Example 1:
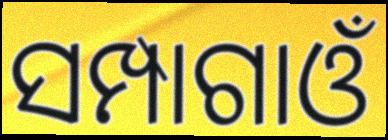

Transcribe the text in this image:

ସମ୍ପାଗାଓଁ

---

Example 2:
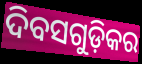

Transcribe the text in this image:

ଦିବସଗୁଡ଼ିକର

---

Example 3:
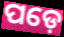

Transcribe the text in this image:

ପଡ଼େ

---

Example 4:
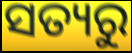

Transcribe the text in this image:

ସତ୍ୟରୁ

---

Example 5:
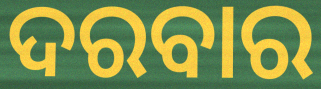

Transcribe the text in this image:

ଦରବାର